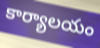
కార్యాలయం